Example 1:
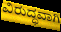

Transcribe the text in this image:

ವಿರುದ್ಧವಾಗಿ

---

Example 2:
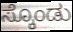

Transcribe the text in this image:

ಸ್ಕೊಂಡು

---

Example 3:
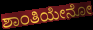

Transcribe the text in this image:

ಶಾಂತಿಯೇನೋ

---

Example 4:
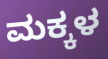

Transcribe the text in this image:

ಮಕ್ಕಳ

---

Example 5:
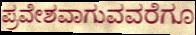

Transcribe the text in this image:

ಪ್ರವೇಶವಾಗುವವರೆಗೂ